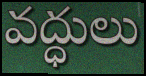
వద్ధులు